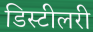
डिस्टीलरी